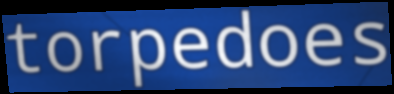
torpedoes